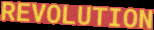
REVOLUTION